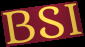
BSI